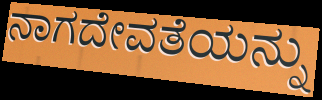
ನಾಗದೇವತೆಯನ್ನು